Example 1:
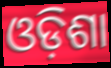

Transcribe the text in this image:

ଓଡ଼ିଶା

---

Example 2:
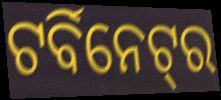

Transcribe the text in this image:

ଟର୍ବିନେଟ୍‌ର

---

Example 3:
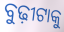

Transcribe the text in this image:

ବୁଢ଼ୀଟାକୁ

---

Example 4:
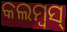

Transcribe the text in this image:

କଲମ୍ବସ୍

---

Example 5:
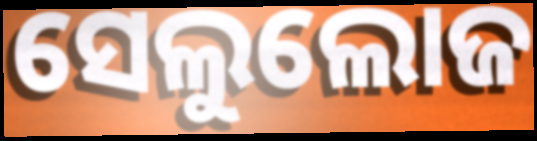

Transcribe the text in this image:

ସେଲୁଲୋଜ